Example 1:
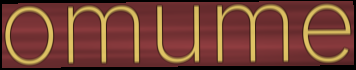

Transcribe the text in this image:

omume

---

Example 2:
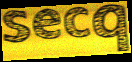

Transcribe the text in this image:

secq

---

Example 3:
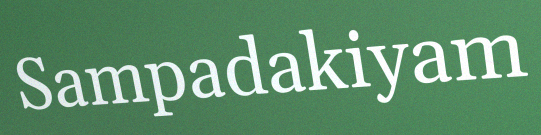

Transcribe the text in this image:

Sampadakiyam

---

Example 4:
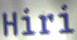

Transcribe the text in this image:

Hiri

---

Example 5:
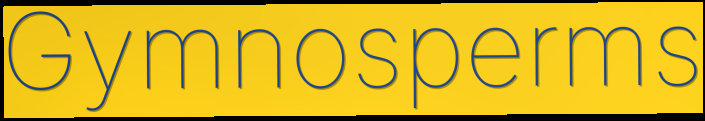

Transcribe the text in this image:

Gymnosperms